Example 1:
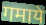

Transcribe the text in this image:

गमाये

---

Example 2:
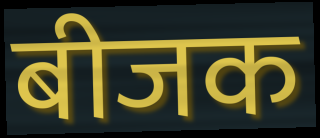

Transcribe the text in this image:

बीजक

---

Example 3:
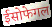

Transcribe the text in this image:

ईसोफेगल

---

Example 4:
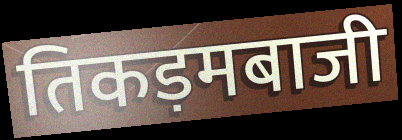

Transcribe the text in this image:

तिकड़मबाजी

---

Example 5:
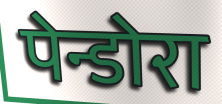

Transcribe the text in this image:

पेन्डोरा